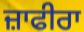
ਜ਼ਾਫੀਰਾ